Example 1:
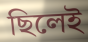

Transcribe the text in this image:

ছিলেই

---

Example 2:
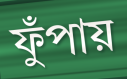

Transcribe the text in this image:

ফুঁপায়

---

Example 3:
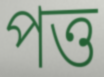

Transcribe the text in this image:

পত্ত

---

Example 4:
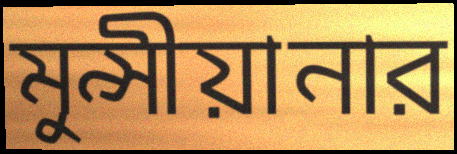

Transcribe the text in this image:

মুন্সীয়ানার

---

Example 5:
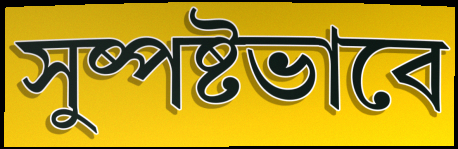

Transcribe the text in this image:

সুষ্পষ্টভাবে